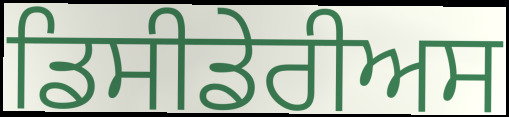
ਡਿਸੀਡੇਰੀਅਸ